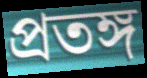
প্রতঙ্গ